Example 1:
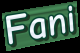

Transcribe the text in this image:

Fani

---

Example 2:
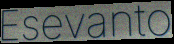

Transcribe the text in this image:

Esevanto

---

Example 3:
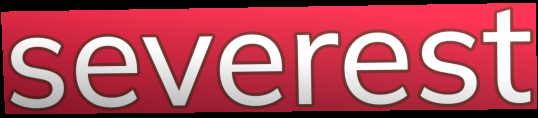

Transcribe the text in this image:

severest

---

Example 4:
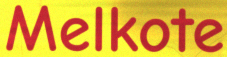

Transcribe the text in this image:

Melkote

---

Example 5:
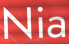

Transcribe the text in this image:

Nia